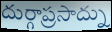
దుర్గాప్రసాద్ను